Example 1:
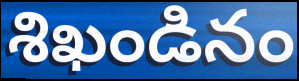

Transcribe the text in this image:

శిఖండినం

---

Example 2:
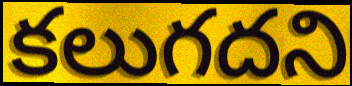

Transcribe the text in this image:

కలుగదని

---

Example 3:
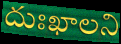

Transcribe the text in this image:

దుఃఖాలని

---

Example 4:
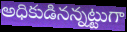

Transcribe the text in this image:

అధికుడినన్నట్టుగా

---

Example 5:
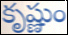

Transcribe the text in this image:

కృష్ణుం